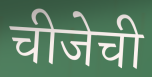
चीजेची